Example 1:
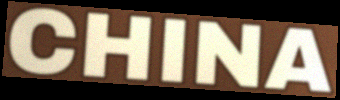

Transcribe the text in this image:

CHINA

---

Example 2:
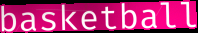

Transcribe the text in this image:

basketball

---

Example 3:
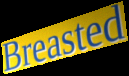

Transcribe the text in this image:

Breasted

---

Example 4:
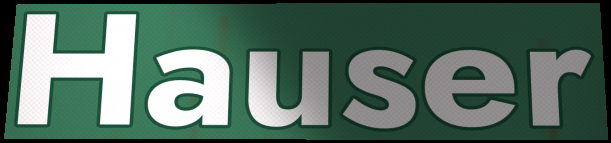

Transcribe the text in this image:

Hauser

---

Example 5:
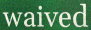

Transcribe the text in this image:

waived